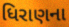
ધિરાણના